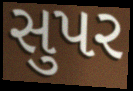
સુપર